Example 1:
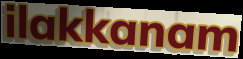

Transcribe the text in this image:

ilakkanam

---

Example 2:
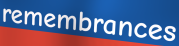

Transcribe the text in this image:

remembrances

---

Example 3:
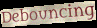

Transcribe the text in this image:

Debouncing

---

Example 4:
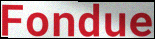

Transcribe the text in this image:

Fondue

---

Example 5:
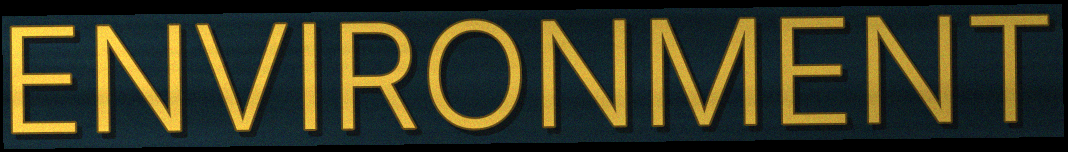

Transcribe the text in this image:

ENVIRONMENT